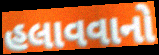
હલાવવાનો